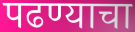
पढण्याचा